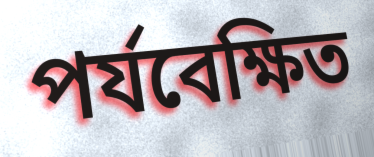
পৰ্যবেক্ষিত